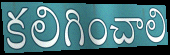
కలిగించాలి